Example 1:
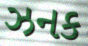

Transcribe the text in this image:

ઝનક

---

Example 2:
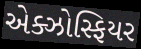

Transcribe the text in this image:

એક્ઝોસ્ફિયર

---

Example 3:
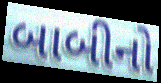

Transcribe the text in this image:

બાબીનો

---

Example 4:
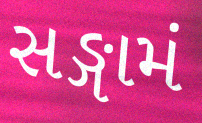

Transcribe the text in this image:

સઙ્ગામં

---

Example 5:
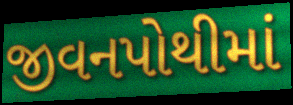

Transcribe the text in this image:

જીવનપોથીમાં